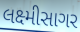
લક્ષ્મીસાગર